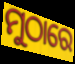
ମୁଠାରେ